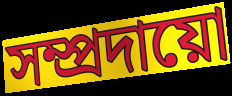
সম্প্ৰদায়ো